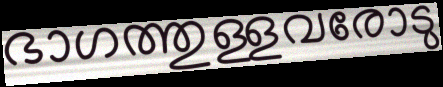
ഭാഗത്തുള്ളവരോടു